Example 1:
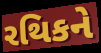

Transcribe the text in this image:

રથિકને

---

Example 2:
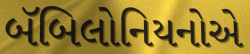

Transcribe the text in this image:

બૅબિલોનિયનોએ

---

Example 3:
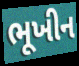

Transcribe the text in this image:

ભૂખીન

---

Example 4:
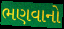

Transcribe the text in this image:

ભણવાનો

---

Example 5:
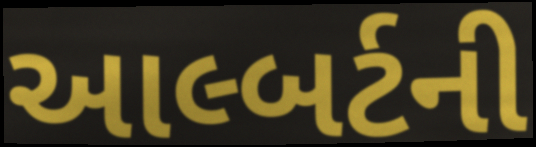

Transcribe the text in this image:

આલ્બર્ટની